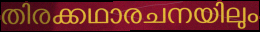
തിരക്കഥാരചനയിലും